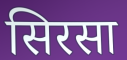
सिरसा